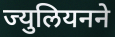
ज्युलियनने